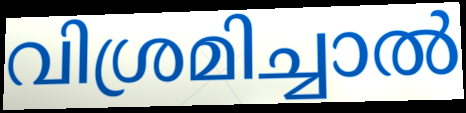
വിശ്രമിച്ചാൽ